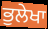
ਭੁਲੇਖਾ